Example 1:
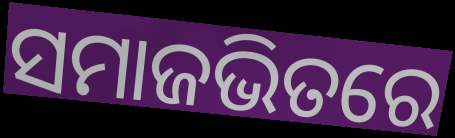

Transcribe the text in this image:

ସମାଜଭିତରେ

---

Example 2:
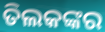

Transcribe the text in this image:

ତିଲକଙ୍କର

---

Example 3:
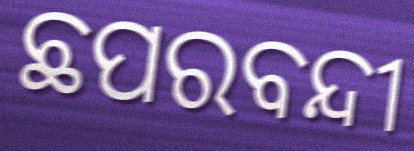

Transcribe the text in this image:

ଛପରବନ୍ଦୀ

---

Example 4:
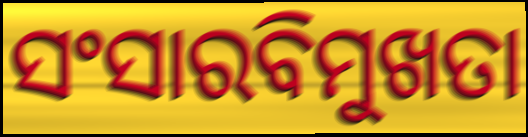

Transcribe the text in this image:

ସଂସାରବିମୁଖତା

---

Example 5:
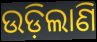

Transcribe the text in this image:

ଉଡ଼ିଲାଣି